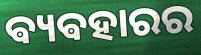
ଵ୍ୟଵହାରର